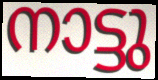
നാട്ടു